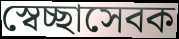
স্বেচ্ছাসেবক